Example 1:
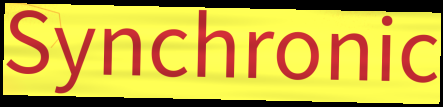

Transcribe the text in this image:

Synchronic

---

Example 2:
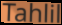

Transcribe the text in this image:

Tahlil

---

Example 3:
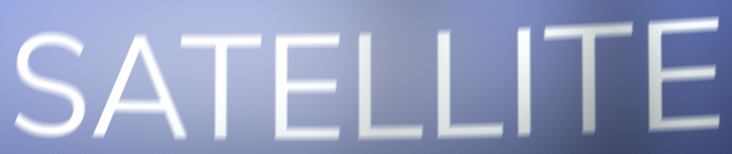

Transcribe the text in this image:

SATELLITE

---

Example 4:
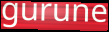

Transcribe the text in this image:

gurune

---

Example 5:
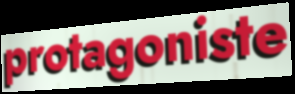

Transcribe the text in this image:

protagoniste